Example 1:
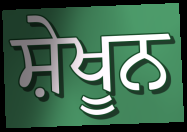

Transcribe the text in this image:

ਸ਼ੇਖੂਨ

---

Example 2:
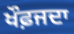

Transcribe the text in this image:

ਖੌਫ਼ਜਦਾ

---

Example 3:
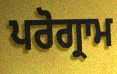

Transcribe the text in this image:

ਪਰੋਗ੍ਰਾਮ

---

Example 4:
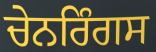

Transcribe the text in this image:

ਚੇਨਰਿੰਗਸ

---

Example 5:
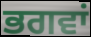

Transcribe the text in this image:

ਭਗਵਾਂ